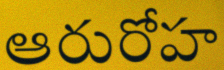
ఆరురోహ